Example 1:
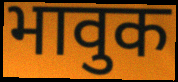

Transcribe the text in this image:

भावुक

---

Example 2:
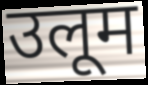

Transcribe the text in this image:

उलूम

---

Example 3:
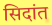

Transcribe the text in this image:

सिदांत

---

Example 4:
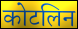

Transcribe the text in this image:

कोटलिन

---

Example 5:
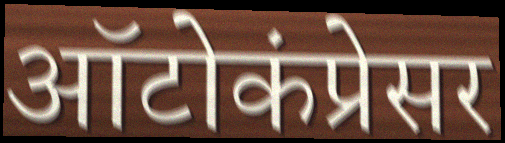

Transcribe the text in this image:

ऑटोकंप्रेसर